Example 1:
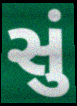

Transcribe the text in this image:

સું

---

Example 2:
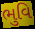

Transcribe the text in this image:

ભુવિ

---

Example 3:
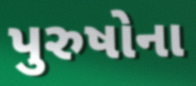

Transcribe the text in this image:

પુરુષોના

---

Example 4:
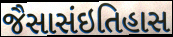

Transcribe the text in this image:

જૈસાસંઇતિહાસ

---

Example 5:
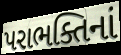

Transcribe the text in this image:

પરાભક્તિનાં